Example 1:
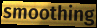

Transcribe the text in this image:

smoothing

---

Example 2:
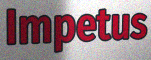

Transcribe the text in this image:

Impetus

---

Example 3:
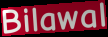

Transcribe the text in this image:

Bilawal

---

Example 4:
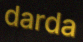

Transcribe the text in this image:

darda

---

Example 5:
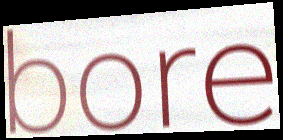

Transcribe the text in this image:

bore